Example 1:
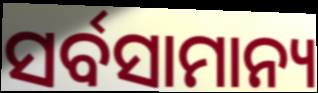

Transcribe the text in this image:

ସର୍ବସାମାନ୍ୟ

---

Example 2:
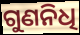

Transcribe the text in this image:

ଗୁଣନିଧି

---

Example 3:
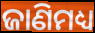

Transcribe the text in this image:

ଜାଣିମଧ୍ୟ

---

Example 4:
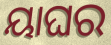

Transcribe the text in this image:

ୟାଘର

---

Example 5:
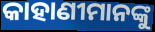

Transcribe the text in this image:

କାହାଣୀମାନଙ୍କୁ